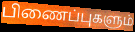
பிணைப்புகளும்